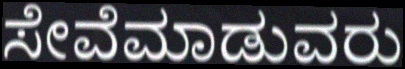
ಸೇವೆಮಾಡುವರು